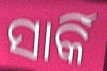
ସାର୍କି